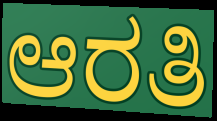
ಆರತಿ